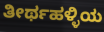
ತೀರ್ಥಹಳ್ಳಿಯ